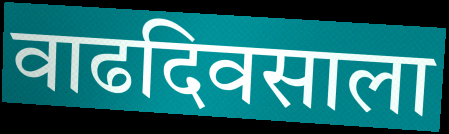
वाढदिवसाला